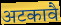
अटकावै